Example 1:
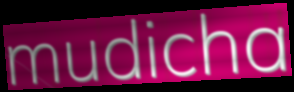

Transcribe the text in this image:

mudicha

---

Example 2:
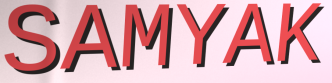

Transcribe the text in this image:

SAMYAK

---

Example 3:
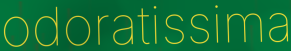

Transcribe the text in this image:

odoratissima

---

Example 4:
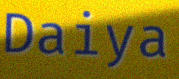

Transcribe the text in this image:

Daiya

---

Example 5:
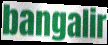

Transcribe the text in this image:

bangalir